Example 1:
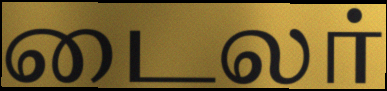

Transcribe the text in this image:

டைலர்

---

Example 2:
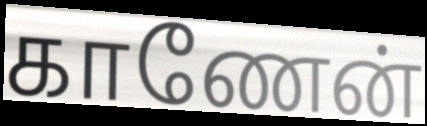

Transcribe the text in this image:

காணேன்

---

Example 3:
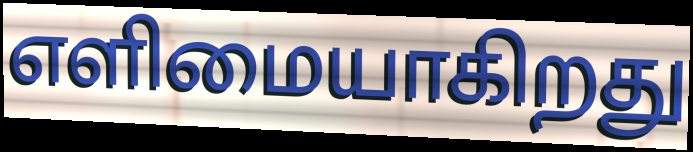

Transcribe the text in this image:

எளிமையாகிறது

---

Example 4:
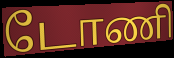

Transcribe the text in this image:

டோணி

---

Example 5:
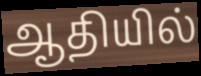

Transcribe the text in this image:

ஆதியில்